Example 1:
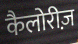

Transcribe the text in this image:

कैलोरीज़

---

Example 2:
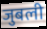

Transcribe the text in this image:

जुबली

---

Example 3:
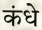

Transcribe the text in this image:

कंधे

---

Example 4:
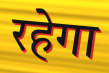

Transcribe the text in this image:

रहेगा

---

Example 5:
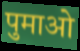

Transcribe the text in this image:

पुमाओ